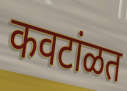
कवटांळत